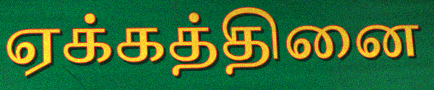
ஏக்கத்தினை